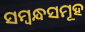
ସମ୍ୱନ୍ଧସମୂହ